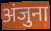
अंजुना